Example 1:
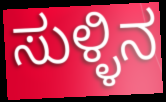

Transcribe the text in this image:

ಸುಳ್ಳಿನ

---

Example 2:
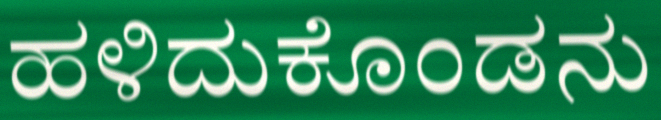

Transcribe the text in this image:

ಹಳಿದುಕೊಂಡನು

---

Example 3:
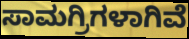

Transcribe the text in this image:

ಸಾಮಗ್ರಿಗಳಾಗಿವೆ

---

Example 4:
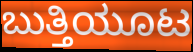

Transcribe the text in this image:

ಬುತ್ತಿಯೂಟ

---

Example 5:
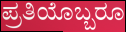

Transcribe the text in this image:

ಪ್ರತಿಯೊಬ್ಬರೂ